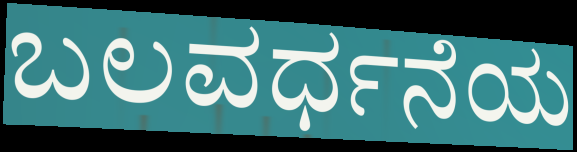
ಬಲವರ್ಧನೆಯ